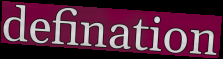
defination